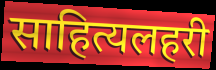
साहित्यलहरी